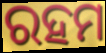
ରହମ